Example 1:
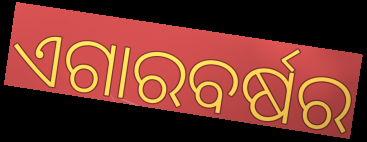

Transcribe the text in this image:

ଏଗାରବର୍ଷର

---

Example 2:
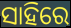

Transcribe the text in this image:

ସାହିରେ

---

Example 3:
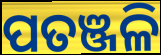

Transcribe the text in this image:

ପତଞ୍ଜଳି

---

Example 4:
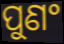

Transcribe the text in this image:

ପୁଣଂ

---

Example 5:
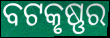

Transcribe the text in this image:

ବଟକୃଷ୍ଣର